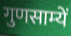
गुणसाम्यें